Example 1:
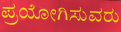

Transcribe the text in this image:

ಪ್ರಯೋಗಿಸುವರು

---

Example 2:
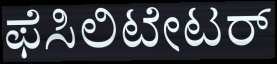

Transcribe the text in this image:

ಫೆಸಿಲಿಟೇಟರ್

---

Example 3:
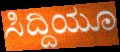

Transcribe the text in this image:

ಸಿದ್ದಿಯೂ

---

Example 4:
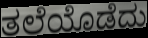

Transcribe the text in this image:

ತಲೆಯೊಡೆದು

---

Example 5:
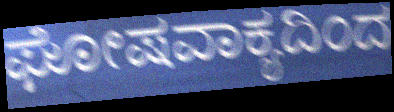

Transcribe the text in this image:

ಘೋಷವಾಕ್ಯದಿಂದ